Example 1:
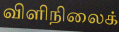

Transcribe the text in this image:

விளிநிலைக்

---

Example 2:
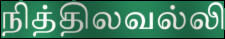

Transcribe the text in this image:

நித்திலவல்லி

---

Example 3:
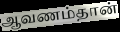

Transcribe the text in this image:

ஆவணம்தான்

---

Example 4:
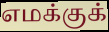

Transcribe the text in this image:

எமக்குக்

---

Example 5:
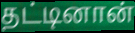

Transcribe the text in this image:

தட்டினான்